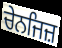
ਚੇਨਜਿਜ਼